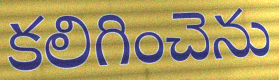
కలిగించెను